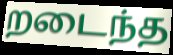
றடைந்த